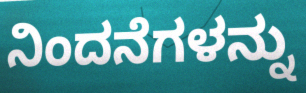
ನಿಂದನೆಗಳನ್ನು